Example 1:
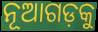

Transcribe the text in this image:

ନୂଆଗଡ଼କୁ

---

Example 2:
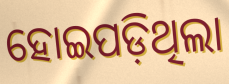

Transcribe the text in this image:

ହୋଇପଡ଼ିଥିଲା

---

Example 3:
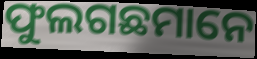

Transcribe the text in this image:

ଫୁଲଗଛମାନେ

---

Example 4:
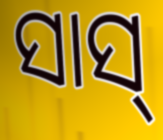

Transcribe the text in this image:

ସାସ୍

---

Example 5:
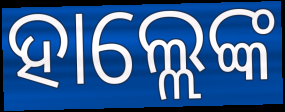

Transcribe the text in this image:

ହାଲ୍ଲେଙ୍କ